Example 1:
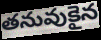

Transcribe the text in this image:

తనువుకైన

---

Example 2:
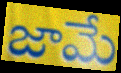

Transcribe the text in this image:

జామే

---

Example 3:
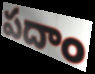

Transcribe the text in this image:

పదాం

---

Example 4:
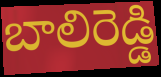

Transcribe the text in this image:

బాలిరెడ్డి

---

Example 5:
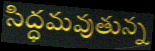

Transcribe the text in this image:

సిద్ధమవుతున్న